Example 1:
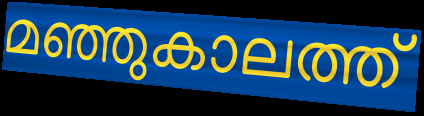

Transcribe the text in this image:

മഞ്ഞുകാലത്ത്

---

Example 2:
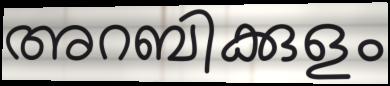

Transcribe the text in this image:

അറബിക്കുളം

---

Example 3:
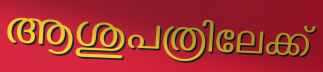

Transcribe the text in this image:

ആശുപത്രിലേക്ക്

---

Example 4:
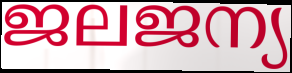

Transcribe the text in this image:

ജലജന്യ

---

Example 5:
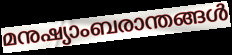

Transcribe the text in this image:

മനുഷ്യാംബരാന്തങ്ങൾ